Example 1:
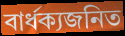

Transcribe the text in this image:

বার্ধক্যজনিত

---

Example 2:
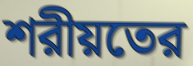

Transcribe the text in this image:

শরীয়তের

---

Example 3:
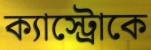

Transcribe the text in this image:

ক্যাস্ট্রোকে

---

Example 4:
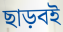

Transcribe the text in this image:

ছাড়বই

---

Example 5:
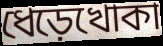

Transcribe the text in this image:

ধেড়েখোকা